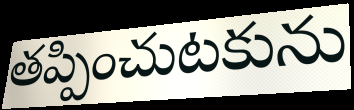
తప్పించుటకును